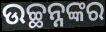
ଉଚ୍ଛନ୍ନଙ୍କର